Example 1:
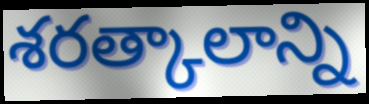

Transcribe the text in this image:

శరత్కాలాన్ని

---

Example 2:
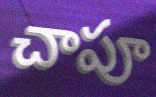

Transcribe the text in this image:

చాపూ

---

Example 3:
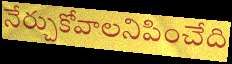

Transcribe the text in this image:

నేర్చుకోవాలనిపించేది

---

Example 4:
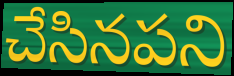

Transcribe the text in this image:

చేసినపని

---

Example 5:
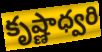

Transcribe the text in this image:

కృష్ణాధ్వరి